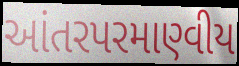
આંતરપરમાણ્વીય